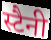
स्टैनी